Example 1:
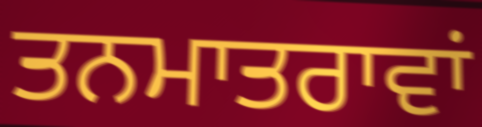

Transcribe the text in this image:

ਤਨਮਾਤਰਾਵਾਂ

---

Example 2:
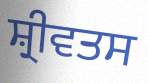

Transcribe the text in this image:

ਸ਼੍ਰੀਵਤਸ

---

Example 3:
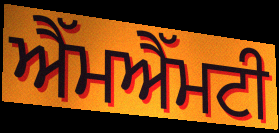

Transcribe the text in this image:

ਐੱਮਐੱਮਟੀ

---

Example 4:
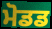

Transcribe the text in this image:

ਮੋਡਡ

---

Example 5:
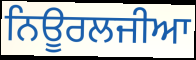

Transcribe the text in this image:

ਨਿਊਰਲਜੀਆ